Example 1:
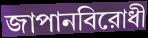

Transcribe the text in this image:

জাপানবিরোধী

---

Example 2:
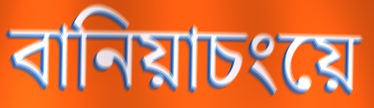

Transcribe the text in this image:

বানিয়াচংয়ে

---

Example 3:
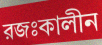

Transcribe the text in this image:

রজঃকালীন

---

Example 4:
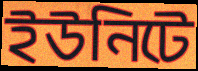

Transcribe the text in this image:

ইউনিটে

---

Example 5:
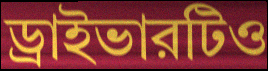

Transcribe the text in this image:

ড্রাইভারটিও